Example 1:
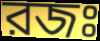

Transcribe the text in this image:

রজঃ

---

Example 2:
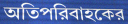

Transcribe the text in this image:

অতিপরিবাহকের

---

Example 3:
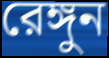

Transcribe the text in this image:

রেঙ্গুন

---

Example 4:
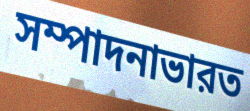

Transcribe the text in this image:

সম্পাদনাভারত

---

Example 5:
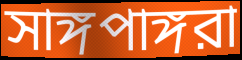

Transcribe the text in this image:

সাঙ্গপাঙ্গরা